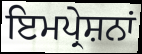
ਇਮਪ੍ਰੇਸ਼ਨਾਂ